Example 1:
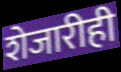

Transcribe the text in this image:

शेजारीही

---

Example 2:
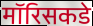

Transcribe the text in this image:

मॉरिसकडे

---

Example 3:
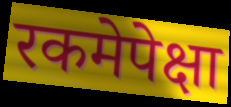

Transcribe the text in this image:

रकमेपेक्षा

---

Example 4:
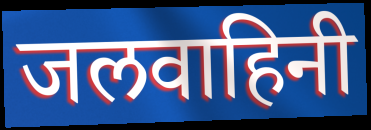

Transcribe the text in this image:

जलवाहिनी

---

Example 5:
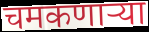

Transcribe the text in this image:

चमकणाऱ्या